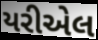
યરીએલ